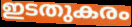
ഇടതുകരം